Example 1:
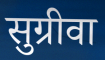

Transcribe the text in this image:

सुग्रीवा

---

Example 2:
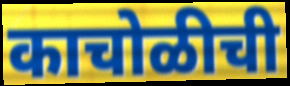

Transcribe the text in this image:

काचोळीची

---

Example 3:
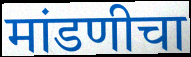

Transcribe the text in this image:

मांडणीचा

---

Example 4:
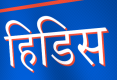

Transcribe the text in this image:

हिडिस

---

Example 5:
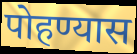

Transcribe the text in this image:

पोहण्यास